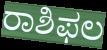
ರಾಶಿಫಲ